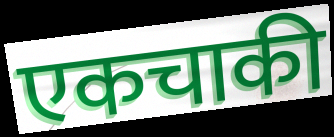
एकचाकी